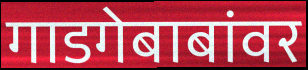
गाडगेबाबांवर